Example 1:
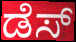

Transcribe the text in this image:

ಡೆಸ್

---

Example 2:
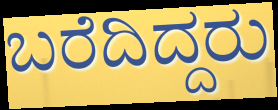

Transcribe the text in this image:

ಬರೆದಿದ್ದರು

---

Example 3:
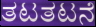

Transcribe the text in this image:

ತಟತಟನೆ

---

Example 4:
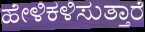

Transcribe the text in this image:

ಹೇಳಿಕಳಿಸುತ್ತಾರೆ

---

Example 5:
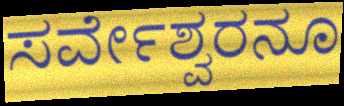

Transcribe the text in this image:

ಸರ್ವೇಶ್ವರನೂ